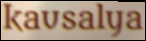
kausalya